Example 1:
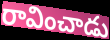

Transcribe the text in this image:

రావించాడు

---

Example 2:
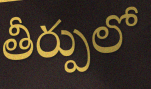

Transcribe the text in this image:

తీర్పులో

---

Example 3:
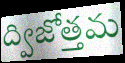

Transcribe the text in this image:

ద్విజోత్తమ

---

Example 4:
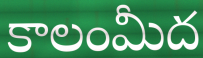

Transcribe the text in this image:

కాలంమీద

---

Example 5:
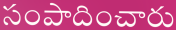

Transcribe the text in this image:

సంపాదించారు